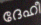
ദേഹീ